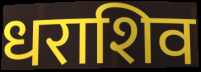
धराशिव